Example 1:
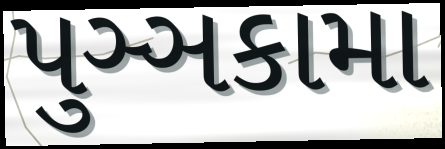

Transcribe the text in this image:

પુઞ્ઞકામા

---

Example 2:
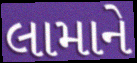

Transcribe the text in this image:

લામાને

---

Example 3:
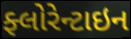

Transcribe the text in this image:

ફ્લોરેન્ટાઇન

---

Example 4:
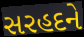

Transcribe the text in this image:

સરહદને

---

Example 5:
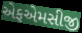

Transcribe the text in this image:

એફએમસીજી